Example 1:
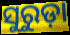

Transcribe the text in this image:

ସୁରୁଡ଼ା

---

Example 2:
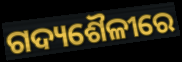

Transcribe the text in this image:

ଗଦ୍ୟଶୈଳୀରେ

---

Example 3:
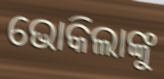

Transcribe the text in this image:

ଭୋକିଲାଙ୍କୁ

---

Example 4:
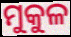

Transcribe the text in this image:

ମୁକୁଳ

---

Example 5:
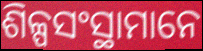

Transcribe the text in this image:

ଶିଳ୍ପସଂସ୍ଥାମାନେ